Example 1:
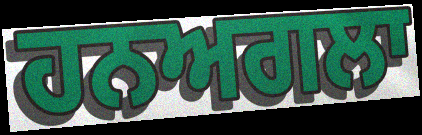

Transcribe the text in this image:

ਹਨਅਗਲਾ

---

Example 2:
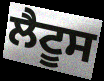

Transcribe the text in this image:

ਲੈਟੂਸ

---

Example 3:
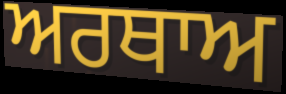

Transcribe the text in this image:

ਅਰਥਾਅ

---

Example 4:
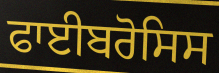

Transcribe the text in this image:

ਫਾਈਬਰੋਸਿਸ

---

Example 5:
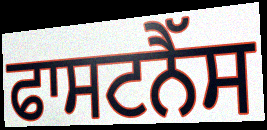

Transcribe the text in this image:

ਫਾਸਟਨੈੱਸ